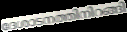
ദേശാടനത്തിനിറങ്ങി